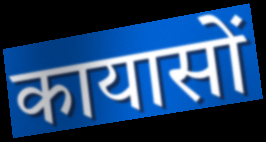
कायासों